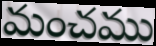
మంచము